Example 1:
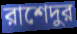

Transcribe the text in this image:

রাশেদুর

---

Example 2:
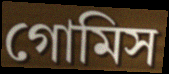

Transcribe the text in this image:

গোমিস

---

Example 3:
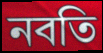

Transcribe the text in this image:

নবতি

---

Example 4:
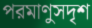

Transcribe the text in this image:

পরমাণুসদৃশ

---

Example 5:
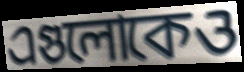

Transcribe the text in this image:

এগুলোকেও